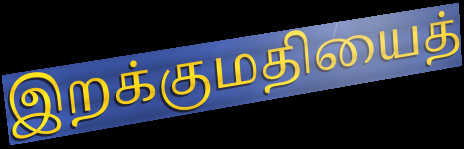
இறக்குமதியைத்